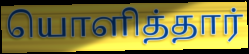
யொளித்தார்